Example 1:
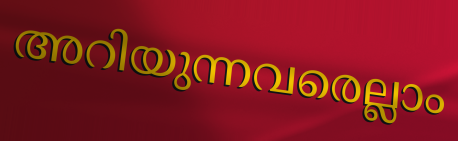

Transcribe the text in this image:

അറിയുന്നവരെല്ലാം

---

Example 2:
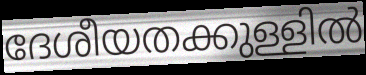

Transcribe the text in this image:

ദേശീയതക്കുള്ളിൽ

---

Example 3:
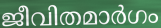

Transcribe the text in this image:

ജീവിതമാർഗം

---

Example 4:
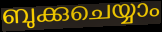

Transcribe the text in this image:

ബുക്കുചെയ്യാം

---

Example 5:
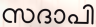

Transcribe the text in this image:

സദാപി